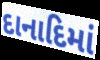
દાનાદિમાં